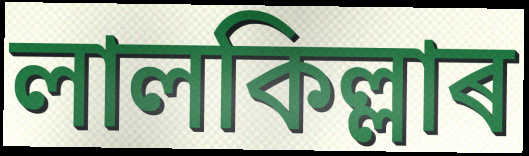
লালকিল্লাৰ